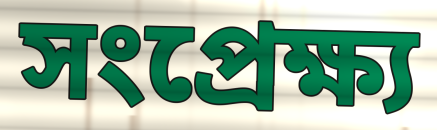
সংপ্রেক্ষ্য